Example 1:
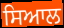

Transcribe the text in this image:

ਸਿਆਲ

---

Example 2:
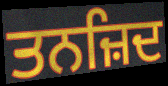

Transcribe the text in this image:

ਤਨਜ਼ਿਦ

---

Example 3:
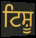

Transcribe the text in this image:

ਟਿਸ਼ੂ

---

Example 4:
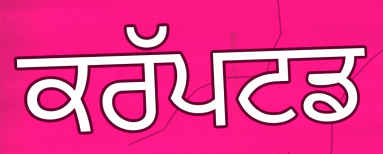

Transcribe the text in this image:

ਕਰੱਪਟਡ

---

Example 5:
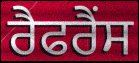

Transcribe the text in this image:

ਰੈਫਰੈਂਸ